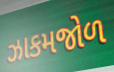
ઝાકમજોળ